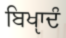
ਬਿਖੵਾਦੰ